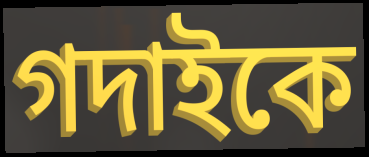
গদাইকে